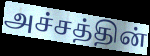
அச்சத்தின்